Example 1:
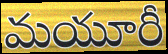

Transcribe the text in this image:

మయూరీ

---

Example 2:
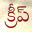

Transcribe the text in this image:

క్రీప్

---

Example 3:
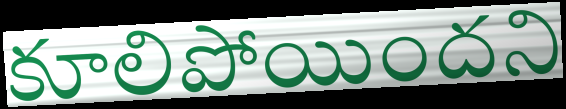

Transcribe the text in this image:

కూలిపోయిందని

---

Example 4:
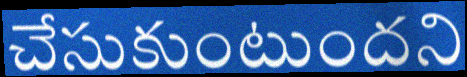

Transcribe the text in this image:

చేసుకుంటుందని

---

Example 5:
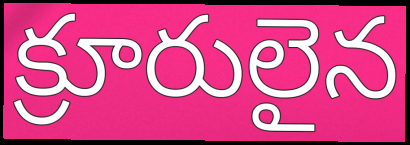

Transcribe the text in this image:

క్రూరులైన